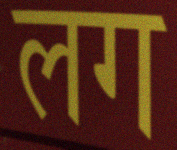
लग